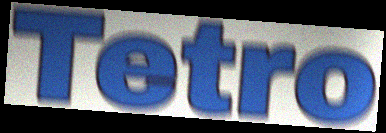
Tetro